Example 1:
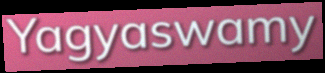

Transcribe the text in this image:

Yagyaswamy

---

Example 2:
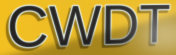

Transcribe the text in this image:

CWDT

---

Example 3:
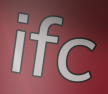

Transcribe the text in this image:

ifc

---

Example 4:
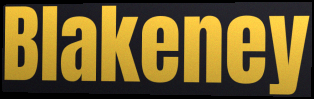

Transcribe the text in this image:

Blakeney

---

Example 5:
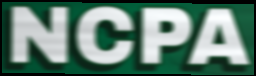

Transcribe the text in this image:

NCPA